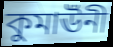
কুমাঊঁনী